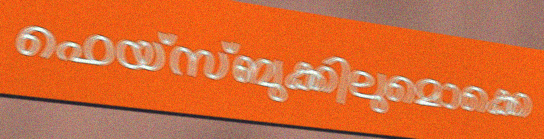
ഫെയ്സ്ബുക്കിലുമൊക്കെ